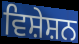
ਵਿਸ਼ੇਸ਼ਨ